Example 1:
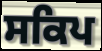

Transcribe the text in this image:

ਸਕਿਪ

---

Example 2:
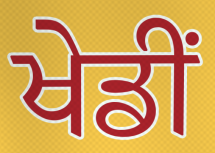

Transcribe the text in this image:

ਖੇਡੀਂ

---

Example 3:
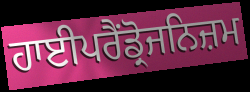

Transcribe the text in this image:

ਹਾਈਪਰੈਂਡ੍ਰੋਜਨਿਜ਼ਮ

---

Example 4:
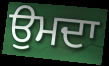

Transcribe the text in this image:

ਉਮਦਾ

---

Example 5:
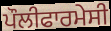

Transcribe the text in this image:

ਪੌਲੀਫਾਰਮੇਸੀ